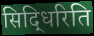
सिद्धिरिति